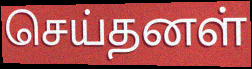
செய்தனள்